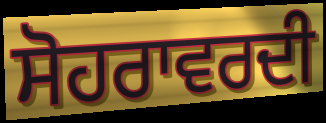
ਸੋਹਰਾਵਰਦੀ